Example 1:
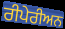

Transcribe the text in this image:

ਰੀਪੇਰੀਅਨ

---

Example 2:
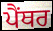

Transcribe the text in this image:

ਪੈੰਥਰ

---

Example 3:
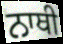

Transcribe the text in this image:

ਨਾਥੀ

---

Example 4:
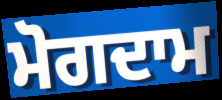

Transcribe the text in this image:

ਮੋਗਦਾਮ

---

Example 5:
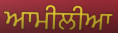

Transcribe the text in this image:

ਆਮੀਲੀਆ